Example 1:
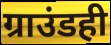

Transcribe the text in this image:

ग्राउंडही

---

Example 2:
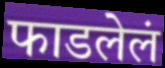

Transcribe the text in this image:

फाडलेलं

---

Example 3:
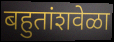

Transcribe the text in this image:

बहुतांशवेळा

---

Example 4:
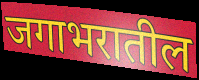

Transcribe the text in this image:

जगाभरातील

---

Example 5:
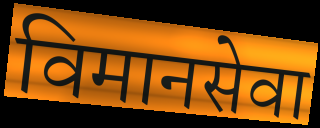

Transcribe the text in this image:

विमानसेवा